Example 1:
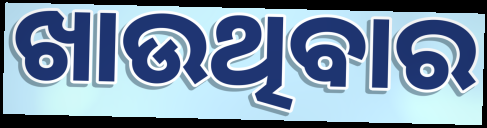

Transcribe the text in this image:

ଖାଉଥିବାର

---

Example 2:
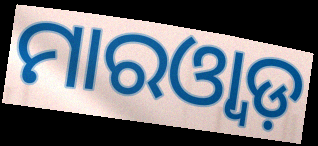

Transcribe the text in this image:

ମାରଓ୍ୱାଡ଼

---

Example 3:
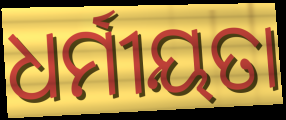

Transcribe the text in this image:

ଧର୍ମୀୟତା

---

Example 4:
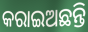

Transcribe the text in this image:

କରାଇଅଛନ୍ତି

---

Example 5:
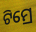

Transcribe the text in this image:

ଟିମ୍ରେ